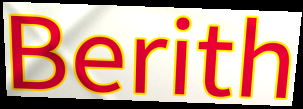
Berith